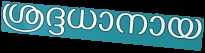
ശ്രദ്ദധാനായ